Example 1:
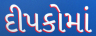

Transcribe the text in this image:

દીપકોમાં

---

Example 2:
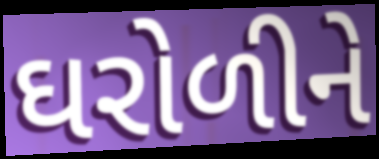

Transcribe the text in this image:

ઘરોળીને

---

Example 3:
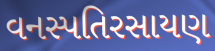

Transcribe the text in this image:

વનસ્પતિરસાયણ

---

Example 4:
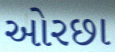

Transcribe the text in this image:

ઓરછા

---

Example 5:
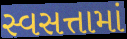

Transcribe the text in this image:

સ્વસત્તામાં